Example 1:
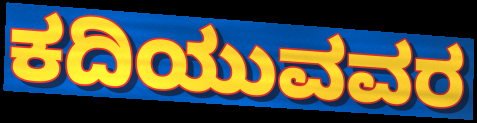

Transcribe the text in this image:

ಕದಿಯುವವರ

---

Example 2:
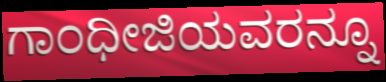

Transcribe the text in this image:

ಗಾಂಧೀಜಿಯವರನ್ನೂ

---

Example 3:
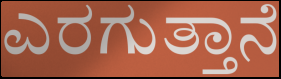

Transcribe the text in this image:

ಎರಗುತ್ತಾನೆ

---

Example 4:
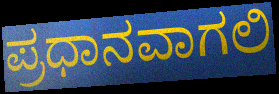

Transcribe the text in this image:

ಪ್ರಧಾನವಾಗಲಿ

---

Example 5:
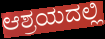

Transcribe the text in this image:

ಆಶ್ರಯದಲ್ಲಿ